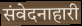
संवेदनाहारी